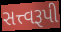
સત્ત્વરૂપી